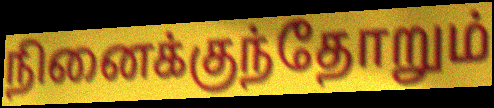
நினைக்குந்தோறும்